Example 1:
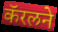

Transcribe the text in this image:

कॅरलने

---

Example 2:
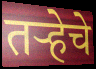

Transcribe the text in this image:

तर्‍हेचे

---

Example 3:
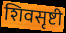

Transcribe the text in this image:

शिवसृष्टी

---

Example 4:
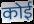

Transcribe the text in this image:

कोई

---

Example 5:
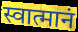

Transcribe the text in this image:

स्वात्मानं